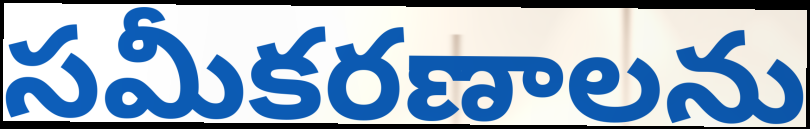
సమీకరణాలను